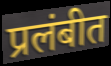
प्रलंबीत